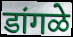
डांगळे